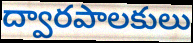
ద్వారపాలకులు